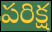
పరిక్ష